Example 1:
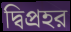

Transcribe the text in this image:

দ্বিপ্রহর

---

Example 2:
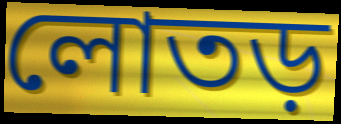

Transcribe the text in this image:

লোতড়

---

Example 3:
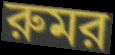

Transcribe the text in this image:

রুমর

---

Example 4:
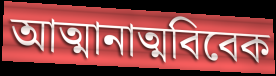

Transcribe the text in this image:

আত্মানাত্মবিবেক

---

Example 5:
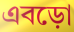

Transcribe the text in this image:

এবড়ো